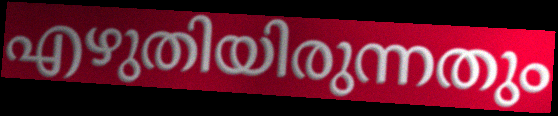
എഴുതിയിരുന്നതും